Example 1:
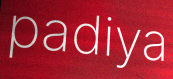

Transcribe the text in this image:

padiya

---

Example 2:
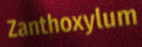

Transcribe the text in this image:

Zanthoxylum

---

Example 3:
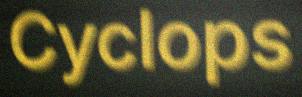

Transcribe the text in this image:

Cyclops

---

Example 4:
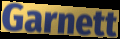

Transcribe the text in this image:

Garnett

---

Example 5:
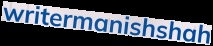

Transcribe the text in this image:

writermanishshah